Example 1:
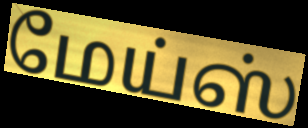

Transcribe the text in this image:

மேய்ஸ்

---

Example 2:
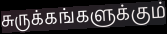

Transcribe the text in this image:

சுருக்கங்களுக்கும்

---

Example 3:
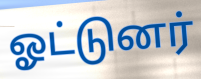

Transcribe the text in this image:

ஓட்டுனர்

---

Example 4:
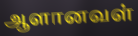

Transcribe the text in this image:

ஆளானவள்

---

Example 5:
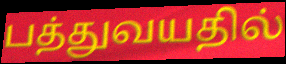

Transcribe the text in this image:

பத்துவயதில்